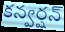
కన్వర్షన్